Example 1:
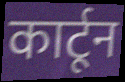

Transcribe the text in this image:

कार्टून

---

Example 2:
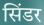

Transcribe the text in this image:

सिंडर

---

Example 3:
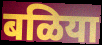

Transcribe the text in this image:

बळिया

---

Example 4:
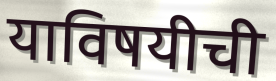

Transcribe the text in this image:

याविषयीची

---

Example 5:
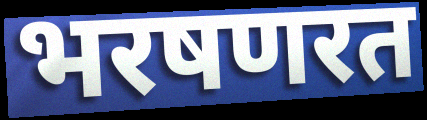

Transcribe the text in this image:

भरषणरत